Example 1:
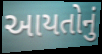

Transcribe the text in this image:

આયતોનું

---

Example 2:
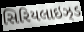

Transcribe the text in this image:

સિરિયલાઇઝ્ડ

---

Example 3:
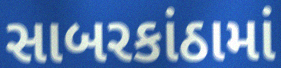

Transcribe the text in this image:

સાબરકાંઠામાં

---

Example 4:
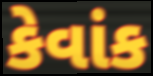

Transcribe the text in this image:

કેવાંક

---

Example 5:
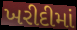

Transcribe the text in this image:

ખરીદીમાં